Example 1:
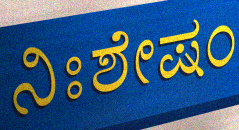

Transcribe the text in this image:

ನಿಃಶೇಷಂ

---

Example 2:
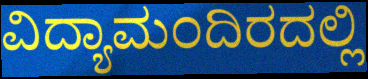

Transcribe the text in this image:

ವಿದ್ಯಾಮಂದಿರದಲ್ಲಿ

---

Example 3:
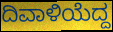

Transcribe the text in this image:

ದಿವಾಳಿಯೆದ್ದ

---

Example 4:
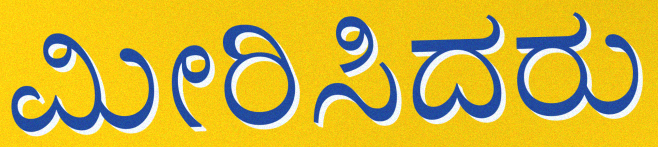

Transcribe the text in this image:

ಮೀರಿಸಿದರು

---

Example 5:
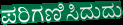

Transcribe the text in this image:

ಪರಿಗಣಿಸಿದುದು